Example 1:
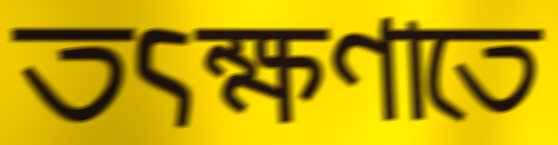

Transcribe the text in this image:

তৎক্ষণাতে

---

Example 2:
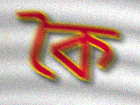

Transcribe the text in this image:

কৈ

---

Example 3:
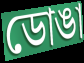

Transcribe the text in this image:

ডোঙা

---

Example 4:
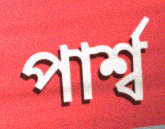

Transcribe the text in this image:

পাৰ্শ্ব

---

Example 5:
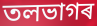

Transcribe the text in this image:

তলভাগৰ